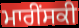
ਮਾਰੀੰਸਕੀ